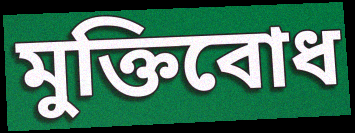
মুক্তিবোধ